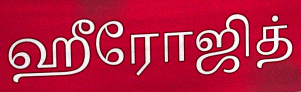
ஹீரோஜித்